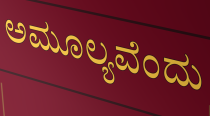
ಅಮೂಲ್ಯವೆಂದು